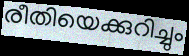
രീതിയെക്കുറിച്ചും